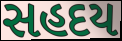
સહદય